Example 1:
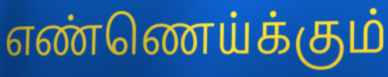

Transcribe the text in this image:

எண்ணெய்க்கும்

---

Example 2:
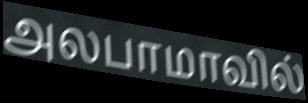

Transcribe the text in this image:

அலபாமாவில்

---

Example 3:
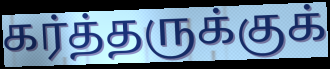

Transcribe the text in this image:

கர்த்தருக்குக்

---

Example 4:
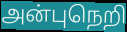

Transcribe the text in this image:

அன்புநெறி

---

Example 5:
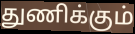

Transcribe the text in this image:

துணிக்கும்